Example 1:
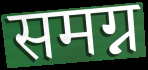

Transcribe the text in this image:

समग्न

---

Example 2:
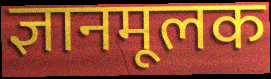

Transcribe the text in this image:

ज्ञानमूलक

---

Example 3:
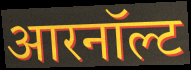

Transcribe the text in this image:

आरनॉल्ट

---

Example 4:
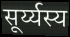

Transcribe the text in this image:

सूर्य्यस्य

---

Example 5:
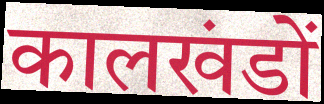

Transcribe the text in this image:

कालखंडों